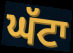
ਘੱਟਾ